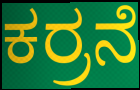
ಕರ್ರನೆ